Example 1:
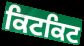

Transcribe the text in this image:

ਕਿਟਕਿਟ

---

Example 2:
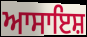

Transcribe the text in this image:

ਆਸਾਇਸ਼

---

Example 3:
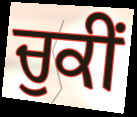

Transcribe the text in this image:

ਚੁਕੀਂ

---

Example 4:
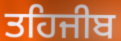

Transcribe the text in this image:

ਤਹਿਜੀਬ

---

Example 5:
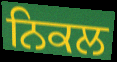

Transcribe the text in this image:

ਨਿਕਲ